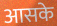
आसके